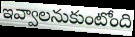
ఇవ్వాలనుకుంటోంది